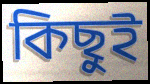
কিছুই